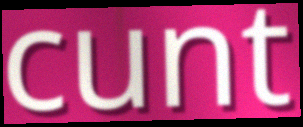
cunt